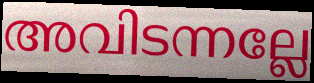
അവിടന്നല്ലേ